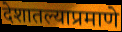
देशातल्याप्रमाणे